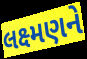
લક્ષ્મણને